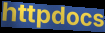
httpdocs